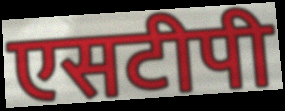
एसटीपी